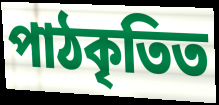
পাঠকৃতিত